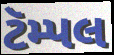
ટૅમ્પલ